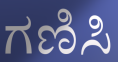
ಗಣಿಸಿ